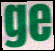
ge